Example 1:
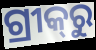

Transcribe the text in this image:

ଗ୍ରୀକ୍‌ରୁ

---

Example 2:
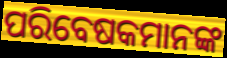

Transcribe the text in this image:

ପରିବେଷକମାନଙ୍କ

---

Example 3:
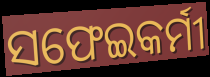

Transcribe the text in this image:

ସଫେଇକର୍ମୀ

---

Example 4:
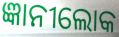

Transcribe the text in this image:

ଜ୍ଞାନୀଲୋକ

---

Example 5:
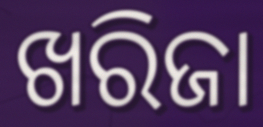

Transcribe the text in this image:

ଖରିଜା